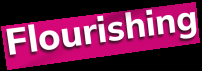
Flourishing